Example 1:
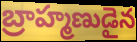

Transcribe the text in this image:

బ్రాహ్మణుడైన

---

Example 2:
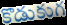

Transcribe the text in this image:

కొడుకుగ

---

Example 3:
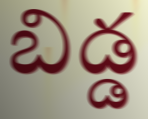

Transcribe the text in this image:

బిడ్డ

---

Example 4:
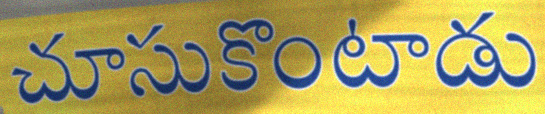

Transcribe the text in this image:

చూసుకొంటాడు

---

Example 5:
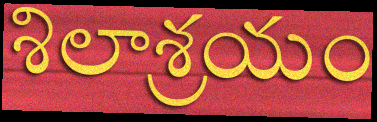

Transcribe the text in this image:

శిలాశ్రయం